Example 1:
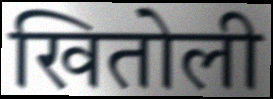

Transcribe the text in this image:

खितोली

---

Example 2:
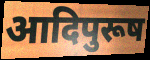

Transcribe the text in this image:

आदिपुरूष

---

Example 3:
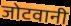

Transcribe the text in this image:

जोटवानी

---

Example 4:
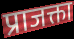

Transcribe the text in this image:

प्राजक्ता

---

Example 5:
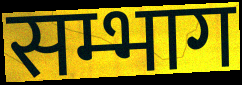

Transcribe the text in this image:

सम्भाग